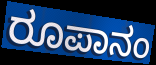
ರೂಪಾನಂ